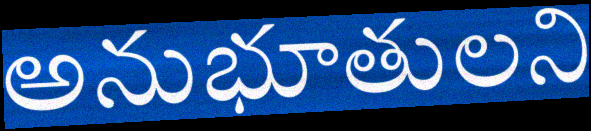
అనుభూతులని